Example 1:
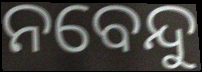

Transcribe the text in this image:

ନବେନ୍ଦୁ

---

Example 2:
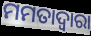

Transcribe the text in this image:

ମମତାଦ୍ୱାରା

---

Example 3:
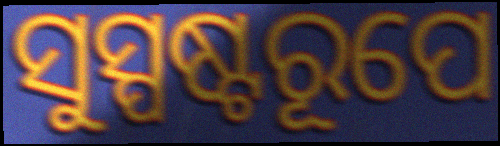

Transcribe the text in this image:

ସୁସ୍ପଷ୍ଟରୂପେ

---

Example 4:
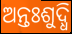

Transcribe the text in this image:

ଅନ୍ତଃଶୁଦ୍ଧି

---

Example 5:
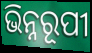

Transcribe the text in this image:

ଭିନ୍ନରୂପୀ